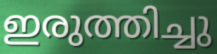
ഇരുത്തിച്ചു